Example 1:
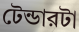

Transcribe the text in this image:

টেন্ডারটা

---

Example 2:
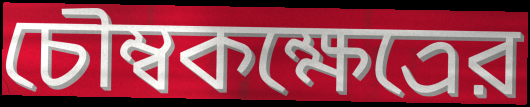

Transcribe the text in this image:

চৌম্বকক্ষেত্রের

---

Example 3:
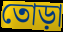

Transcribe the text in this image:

তোড়া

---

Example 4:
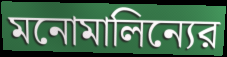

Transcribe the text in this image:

মনোমালিন্যের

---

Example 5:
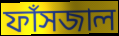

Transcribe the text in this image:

ফাঁসজাল